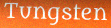
Tungsten